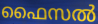
ഫൈസൽ